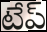
టేప్